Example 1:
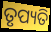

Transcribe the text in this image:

ତୃପ୍ୟତି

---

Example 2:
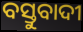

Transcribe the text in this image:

ବସ୍ତୁବାଦୀ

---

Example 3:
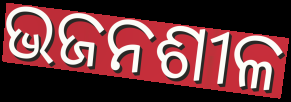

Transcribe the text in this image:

ଭଜନଶୀଳ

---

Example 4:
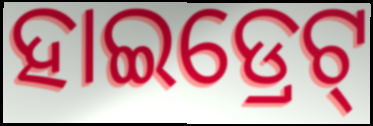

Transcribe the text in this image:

ହାଇଡ୍ରେଟ୍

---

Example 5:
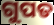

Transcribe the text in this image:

ଗୁପତ